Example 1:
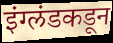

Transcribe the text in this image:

इंग्लंडकडून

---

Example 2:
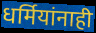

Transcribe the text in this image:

धर्मियांनाही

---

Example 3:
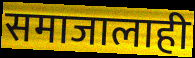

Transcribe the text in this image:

समाजालाही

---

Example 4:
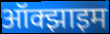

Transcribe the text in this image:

ऑक्झाइम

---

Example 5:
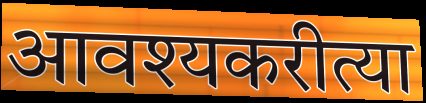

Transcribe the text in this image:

आवश्यकरीत्या